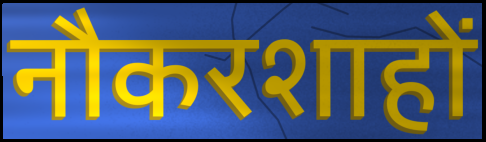
नौकरशाहों